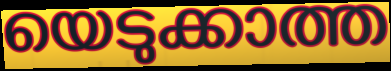
യെടുക്കാത്ത